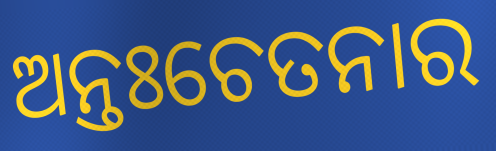
ଅନ୍ତଃଚେତନାର